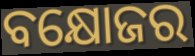
ବକ୍ଷୋଜର